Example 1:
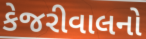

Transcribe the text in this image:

કેજરીવાલનો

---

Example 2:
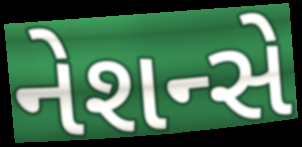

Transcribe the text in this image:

નેશન્સે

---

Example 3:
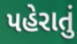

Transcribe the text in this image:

પહેરાતું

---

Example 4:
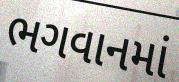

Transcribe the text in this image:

ભગવાનમાં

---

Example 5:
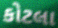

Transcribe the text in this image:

કોટલા